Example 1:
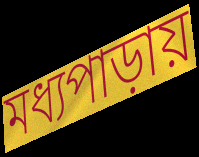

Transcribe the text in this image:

মধ্যপাড়ায়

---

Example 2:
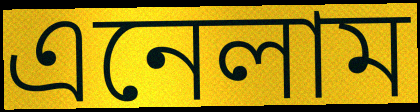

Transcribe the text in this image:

এনেলাম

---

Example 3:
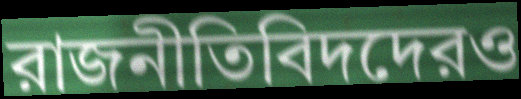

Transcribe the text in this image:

রাজনীতিবিদদেরও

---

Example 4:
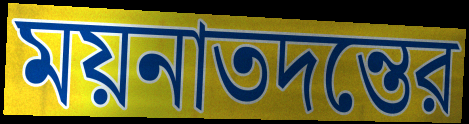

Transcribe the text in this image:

ময়নাতদন্তের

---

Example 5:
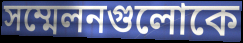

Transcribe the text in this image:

সম্মেলনগুলোকে